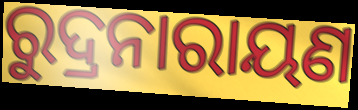
ରୁଦ୍ରନାରାୟଣ